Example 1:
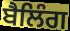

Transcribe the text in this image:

ਬੈਲਿੰਗ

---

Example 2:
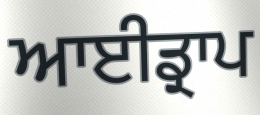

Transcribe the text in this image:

ਆਈਡ੍ਰਾਪ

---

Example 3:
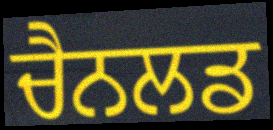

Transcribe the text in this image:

ਚੈਨਲਡ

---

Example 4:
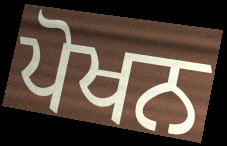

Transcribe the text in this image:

ਪੋਖਨ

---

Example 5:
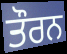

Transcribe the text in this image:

ਤੌਰਨ